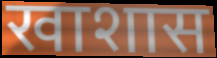
खाशास